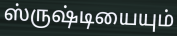
ஸ்ருஷ்டியையும்